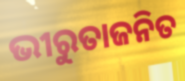
ଭୀରୁତାଜନିତ